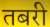
तबरी